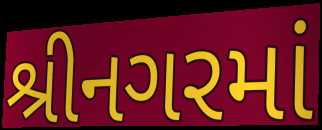
શ્રીનગરમાં